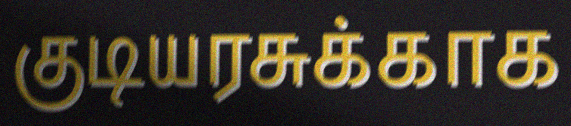
குடியரசுக்காக